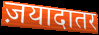
ज़यादातर